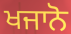
ਖਜਾਨੋ